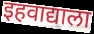
इहवाद्याला